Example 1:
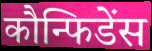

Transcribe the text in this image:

कौन्फिडेंस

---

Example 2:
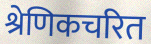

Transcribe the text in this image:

श्रेणिकचरित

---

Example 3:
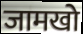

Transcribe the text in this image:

जामखो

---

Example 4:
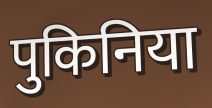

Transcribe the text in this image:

पुकिनिया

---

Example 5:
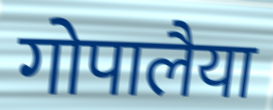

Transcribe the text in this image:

गोपालैया